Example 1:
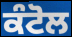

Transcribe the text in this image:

ਕੰਟੋਲ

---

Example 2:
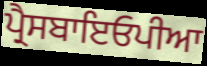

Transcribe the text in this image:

ਪ੍ਰੈਸਬਾਇਓਪੀਆ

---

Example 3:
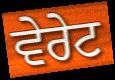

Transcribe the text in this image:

ਵੇਰੇਟ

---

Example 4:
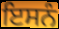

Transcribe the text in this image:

ਇਸਨੰ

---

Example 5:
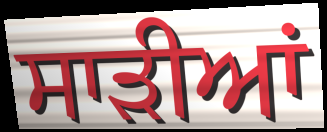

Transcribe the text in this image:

ਸਾਡ਼ੀਆਂ